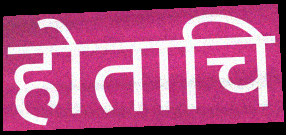
होताचि